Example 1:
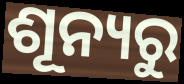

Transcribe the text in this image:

ଶୂନ୍ୟରୁ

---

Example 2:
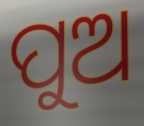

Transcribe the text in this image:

ପୁଅ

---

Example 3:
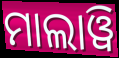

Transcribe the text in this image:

ମାଲାୱି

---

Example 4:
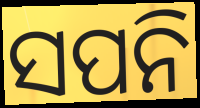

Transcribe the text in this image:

ସପନି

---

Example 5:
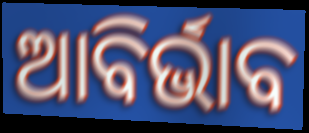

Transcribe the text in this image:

ଆବିର୍ଭାବ